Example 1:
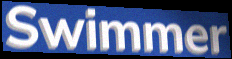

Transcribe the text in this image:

Swimmer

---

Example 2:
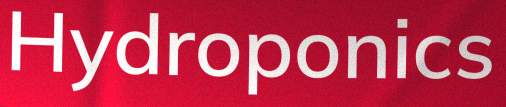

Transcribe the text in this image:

Hydroponics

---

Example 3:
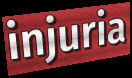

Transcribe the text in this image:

injuria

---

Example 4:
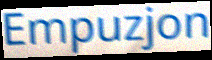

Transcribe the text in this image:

Empuzjon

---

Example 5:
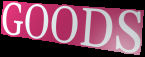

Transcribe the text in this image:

GOODS